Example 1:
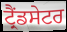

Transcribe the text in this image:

ਟ੍ਰੈਂਡਸੇਟਰ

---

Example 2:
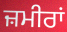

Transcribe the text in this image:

ਜ਼ਮੀਰਾਂ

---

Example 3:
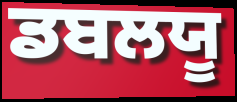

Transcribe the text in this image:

ਡਬਲਯੂ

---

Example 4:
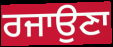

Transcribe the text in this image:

ਰਜਾਉਣਾ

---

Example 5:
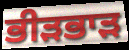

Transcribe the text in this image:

ਭੀੜਭਾੜ